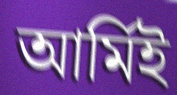
আর্মিই